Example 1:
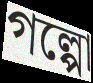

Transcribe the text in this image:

গল্পো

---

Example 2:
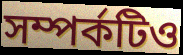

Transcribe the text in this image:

সম্পর্কটিও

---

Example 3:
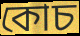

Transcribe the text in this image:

কোচ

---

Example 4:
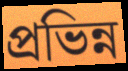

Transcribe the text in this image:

প্রভিন্ন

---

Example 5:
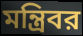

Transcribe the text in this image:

মন্ত্রিবর